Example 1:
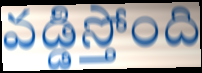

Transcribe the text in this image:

వడ్డిస్తోంది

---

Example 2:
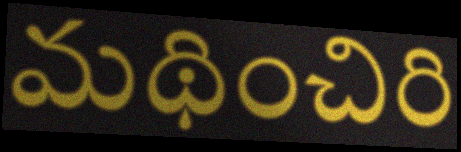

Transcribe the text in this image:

మథించిరి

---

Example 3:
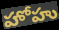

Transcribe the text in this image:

హోహు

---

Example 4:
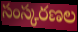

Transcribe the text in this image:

సంస్కరణల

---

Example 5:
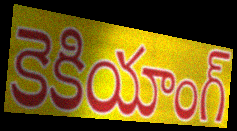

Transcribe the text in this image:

కెకియాంగ్